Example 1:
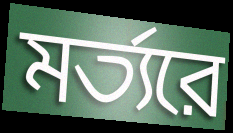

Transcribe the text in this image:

মর্ত্যরে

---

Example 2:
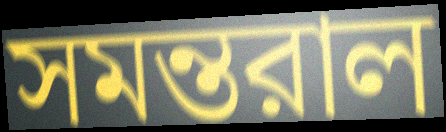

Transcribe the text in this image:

সমন্তরাল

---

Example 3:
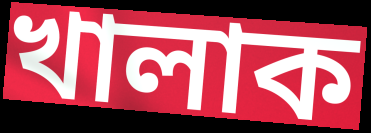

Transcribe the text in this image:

খালাক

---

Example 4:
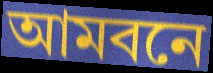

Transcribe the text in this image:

আমবনে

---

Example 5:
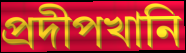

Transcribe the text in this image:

প্রদীপখানি